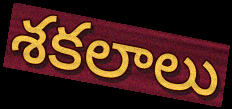
శకలాలు